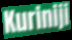
Kuriniji